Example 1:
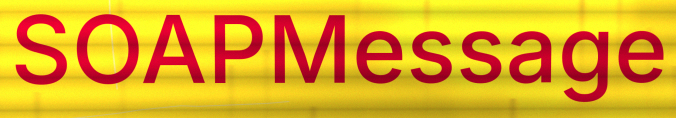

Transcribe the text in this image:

SOAPMessage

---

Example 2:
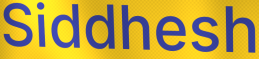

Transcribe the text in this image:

Siddhesh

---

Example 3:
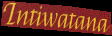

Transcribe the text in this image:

Intiwatana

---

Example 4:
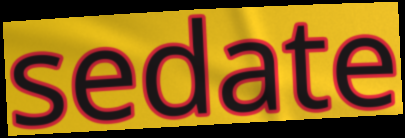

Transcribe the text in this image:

sedate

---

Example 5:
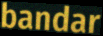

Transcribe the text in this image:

bandar